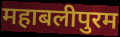
महाबलीपुरम